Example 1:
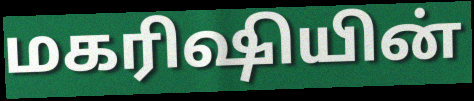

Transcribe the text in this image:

மகரிஷியின்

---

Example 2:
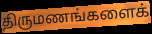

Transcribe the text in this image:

திருமணங்களைக்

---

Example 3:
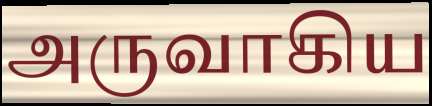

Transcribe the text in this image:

அருவாகிய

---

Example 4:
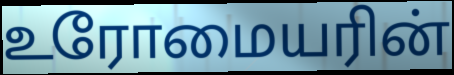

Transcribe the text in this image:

உரோமையரின்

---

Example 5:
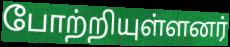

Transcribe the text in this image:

போற்றியுள்ளனர்